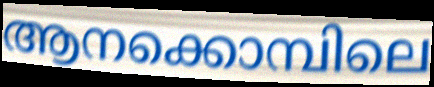
ആനക്കൊമ്പിലെ